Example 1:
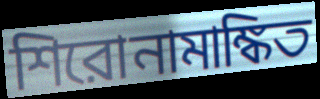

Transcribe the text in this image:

শিরোনামাঙ্কিত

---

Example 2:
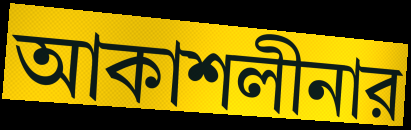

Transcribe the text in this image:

আকাশলীনার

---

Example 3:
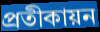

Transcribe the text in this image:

প্রতীকায়ন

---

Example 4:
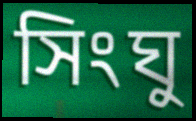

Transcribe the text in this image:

সিংঘু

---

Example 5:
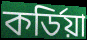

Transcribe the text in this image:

কর্ডিয়া